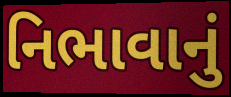
નિભાવાનું